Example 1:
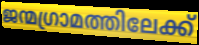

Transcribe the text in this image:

ജന്മഗ്രാമത്തിലേക്ക്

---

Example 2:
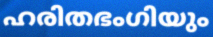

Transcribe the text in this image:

ഹരിതഭംഗിയും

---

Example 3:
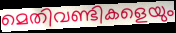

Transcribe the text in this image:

മെതിവണ്ടികളെയും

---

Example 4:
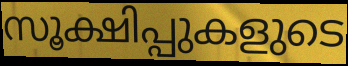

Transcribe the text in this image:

സൂക്ഷിപ്പുകളുടെ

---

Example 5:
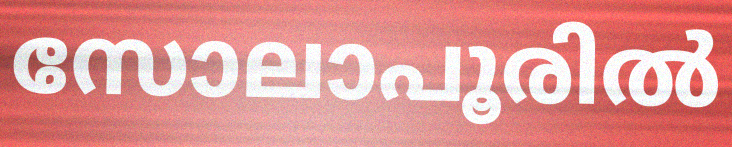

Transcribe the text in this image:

സോലാപൂരിൽ